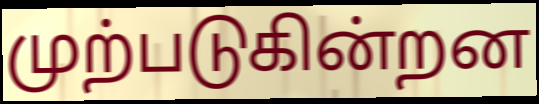
முற்படுகின்றன